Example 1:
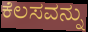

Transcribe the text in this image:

ಕೆಲಸವನ್ನು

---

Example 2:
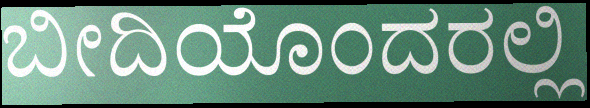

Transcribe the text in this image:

ಬೀದಿಯೊಂದರಲ್ಲಿ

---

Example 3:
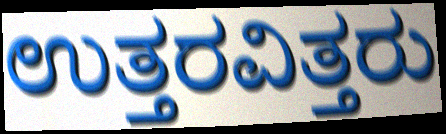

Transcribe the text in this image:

ಉತ್ತರವಿತ್ತರು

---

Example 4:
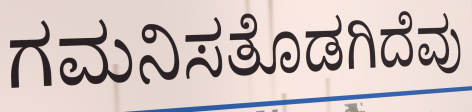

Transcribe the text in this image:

ಗಮನಿಸತೊಡಗಿದೆವು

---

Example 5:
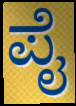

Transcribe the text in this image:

ಪೈ